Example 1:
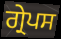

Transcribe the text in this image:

ਗ੍ਰੇਪਸ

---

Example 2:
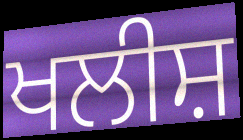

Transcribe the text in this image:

ਖਲੀਸ਼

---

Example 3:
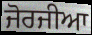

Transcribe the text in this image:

ਜੋਰਜੀਆ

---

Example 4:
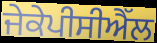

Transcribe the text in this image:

ਜੇਕੇਪੀਸੀਐੱਲ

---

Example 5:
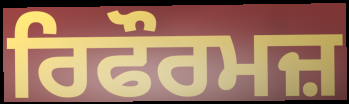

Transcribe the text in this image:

ਰਿਫੌਰਮਜ਼